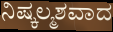
ನಿಷ್ಕಲ್ಮಶವಾದ